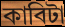
কাবিটা